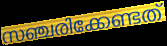
സഞ്ചരിക്കേണ്ടത്